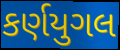
કર્ણયુગલ